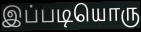
இப்படியொரு